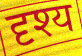
दृश्य